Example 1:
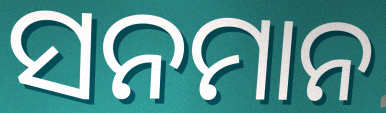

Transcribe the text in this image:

ସନମାନ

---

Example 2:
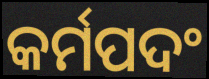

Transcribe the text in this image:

କର୍ମପଦଂ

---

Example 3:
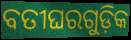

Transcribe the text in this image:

ବତୀଘରଗୁଡ଼ିକ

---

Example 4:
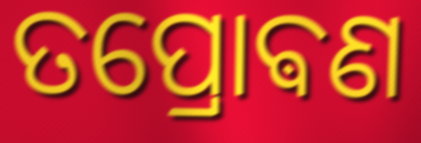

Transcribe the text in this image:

ତପ୍ରୋଵଣ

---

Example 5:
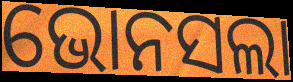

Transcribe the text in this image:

ଭୋନସଲା